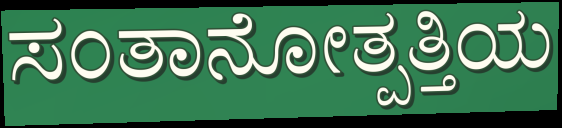
ಸಂತಾನೋತ್ಪತ್ತಿಯ